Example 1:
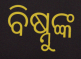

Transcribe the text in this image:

ବିଷ୍ନୁଙ୍କ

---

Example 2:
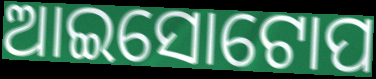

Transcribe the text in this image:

ଆଇସୋଟୋପ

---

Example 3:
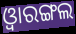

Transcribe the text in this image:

ଓ୍ବାରଙ୍ଗଲ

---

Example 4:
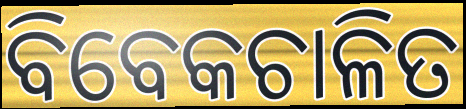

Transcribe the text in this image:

ବିବେକଚାଳିତ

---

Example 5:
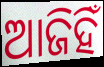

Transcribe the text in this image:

ଆଜିହିଁ